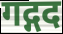
गद्गद